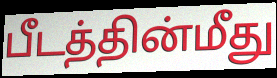
பீடத்தின்மீது